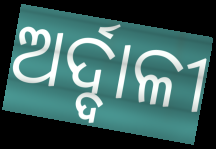
ଅର୍ଦ୍ଦାଳୀ